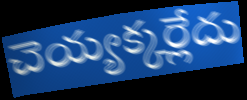
చెయ్యక్కర్లేదు